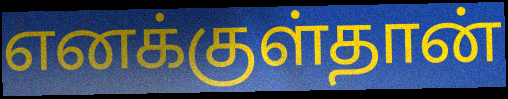
எனக்குள்தான்